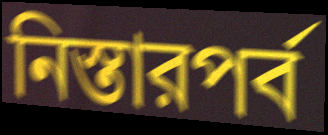
নিস্তারপর্ব